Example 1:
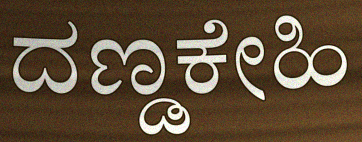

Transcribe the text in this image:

ದಣ್ಡಕೇಹಿ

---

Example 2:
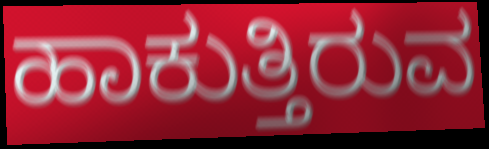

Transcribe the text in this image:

ಹಾಕುತ್ತಿರುವ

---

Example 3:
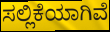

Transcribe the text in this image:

ಸಲ್ಲಿಕೆಯಾಗಿವೆ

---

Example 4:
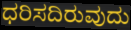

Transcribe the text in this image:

ಧರಿಸದಿರುವುದು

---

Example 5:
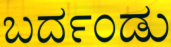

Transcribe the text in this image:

ಬರ್ದಂಡು